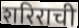
शरिराची